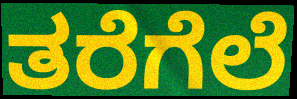
ತರೆಗೆಲೆ